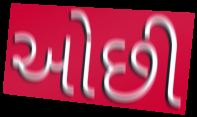
ઓછી